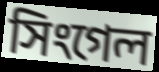
সিংগেল